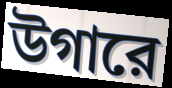
উগারে